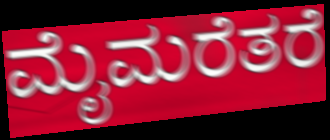
ಮೈಮರೆತರೆ